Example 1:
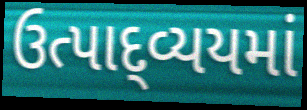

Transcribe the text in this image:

ઉત્પાદ્વ્યયમાં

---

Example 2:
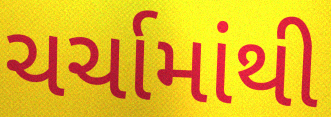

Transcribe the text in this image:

ચર્ચામાંથી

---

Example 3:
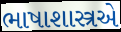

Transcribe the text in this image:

ભાષાશાસ્ત્રએ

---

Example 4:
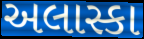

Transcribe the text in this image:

અલાસ્કા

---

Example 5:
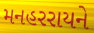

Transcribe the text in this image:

મનહરરાયને